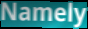
Namely